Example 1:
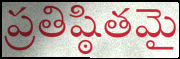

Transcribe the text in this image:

ప్రతిష్ఠితమై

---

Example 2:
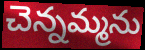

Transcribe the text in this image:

చెన్నమ్మను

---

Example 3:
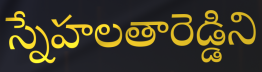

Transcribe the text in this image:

స్నేహలతారెడ్డిని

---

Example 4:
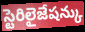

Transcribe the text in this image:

స్టెరిలైజేషన్కు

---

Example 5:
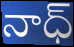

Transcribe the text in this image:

నాధ్